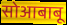
सोआबाबू